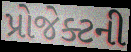
પ્રોજેક્ટની